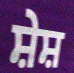
ਸ਼ੇਸ਼